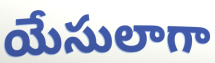
యేసులాగా